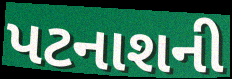
પટનાશની